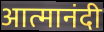
आत्मानंदी